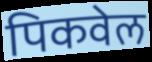
पिकवेल